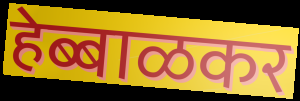
हेब्बाळकर